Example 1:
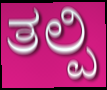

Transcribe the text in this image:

ತಲ್ಪಿ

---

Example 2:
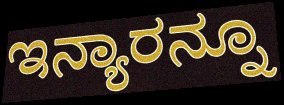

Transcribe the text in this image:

ಇನ್ಯಾರನ್ನೂ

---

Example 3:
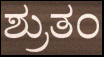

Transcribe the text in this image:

ಶ್ರುತಂ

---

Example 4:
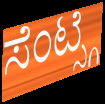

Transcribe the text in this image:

ಸೆಂಟ್ಸ್ಗೆ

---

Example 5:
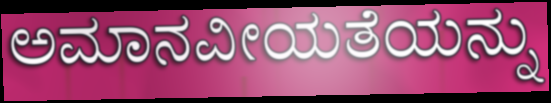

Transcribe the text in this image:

ಅಮಾನವೀಯತೆಯನ್ನು